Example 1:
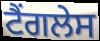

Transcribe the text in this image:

ਟੈਂਗਲੇਸ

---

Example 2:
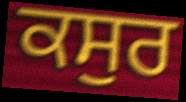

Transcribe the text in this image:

ਕਸੁਰ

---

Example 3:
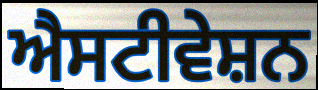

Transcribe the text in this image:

ਐਸਟੀਵੇਸ਼ਨ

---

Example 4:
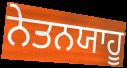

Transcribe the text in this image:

ਨੇਤਨਯਾਹੂ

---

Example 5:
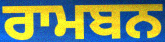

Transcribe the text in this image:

ਰਾਮਬਨ